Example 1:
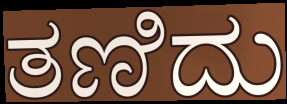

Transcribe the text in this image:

ತಣಿದು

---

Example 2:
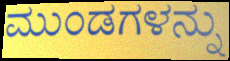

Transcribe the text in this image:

ಮುಂಡಗಳನ್ನು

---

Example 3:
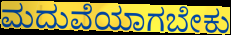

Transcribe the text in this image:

ಮದುವೆಯಾಗಬೇಕು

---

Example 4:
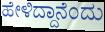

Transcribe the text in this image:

ಹೇಳಿದ್ದಾನೆಂದು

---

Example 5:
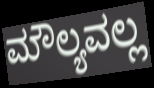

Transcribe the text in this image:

ಮೌಲ್ಯವಲ್ಲ